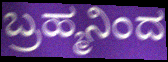
ಬ್ರಹ್ಮನಿಂದ